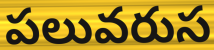
పలువరుస